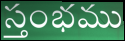
స్తంభము